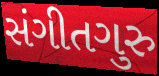
સંગીતગુરુ